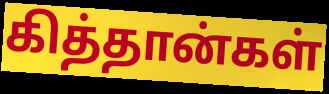
கித்தான்கள்